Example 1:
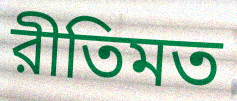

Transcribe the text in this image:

রীতিমত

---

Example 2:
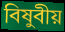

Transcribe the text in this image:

বিষুবীয়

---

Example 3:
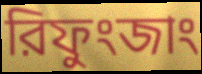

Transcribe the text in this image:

রিফুংজাং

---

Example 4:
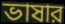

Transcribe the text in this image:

ভাষার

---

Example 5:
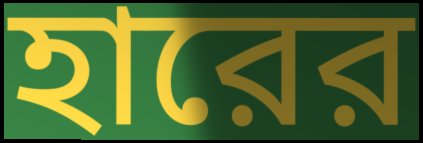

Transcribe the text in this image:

হারের